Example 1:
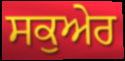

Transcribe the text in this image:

ਸਕੁਅੇਰ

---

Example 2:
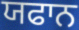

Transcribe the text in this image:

ਯਫਾਨ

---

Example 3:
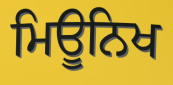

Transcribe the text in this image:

ਮਿਊਨਿਖ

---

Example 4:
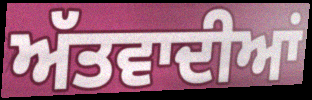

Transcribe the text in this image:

ਅੱਤਵਾਦੀਆਂ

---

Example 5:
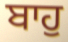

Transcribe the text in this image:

ਬਾਹੁ